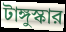
টাঙ্গুস্কার